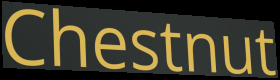
Chestnut